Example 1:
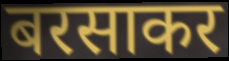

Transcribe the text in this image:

बरसाकर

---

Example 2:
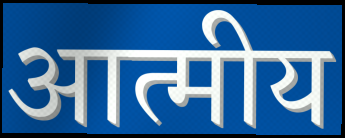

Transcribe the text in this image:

आत्मीय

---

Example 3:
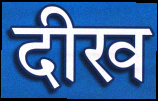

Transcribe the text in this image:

दीख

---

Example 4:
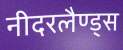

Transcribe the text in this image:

नीदरलैण्ड्स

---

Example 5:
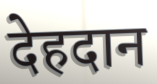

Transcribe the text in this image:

देहदान